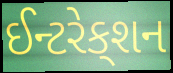
ઈન્ટરેક્‌શન